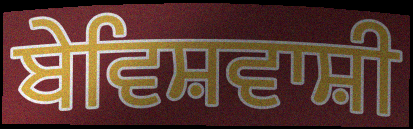
ਬੇਵਿਸ਼ਵਾਸ਼ੀ